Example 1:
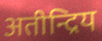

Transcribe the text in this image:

अतीन्द्रिय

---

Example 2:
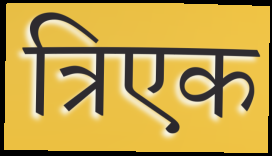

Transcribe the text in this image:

त्रिएक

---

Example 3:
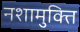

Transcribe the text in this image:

नशामुक्ति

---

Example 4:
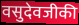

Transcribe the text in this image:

वसुदेवजीकी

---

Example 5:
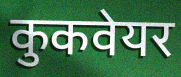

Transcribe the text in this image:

कुकवेयर